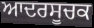
ਆਦਰਸੂਚਕ